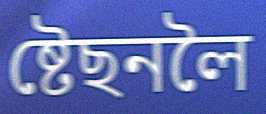
ষ্টেছনলৈ